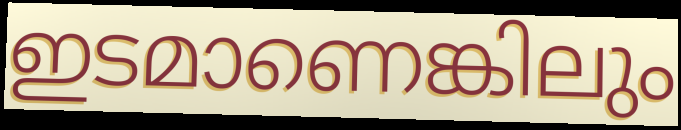
ഇടമാണെങ്കിലും